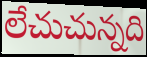
లేచుచున్నది